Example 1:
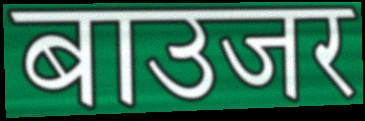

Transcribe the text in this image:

बाउजर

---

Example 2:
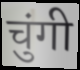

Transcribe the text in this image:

चुंगी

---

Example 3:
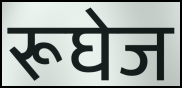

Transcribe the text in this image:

रूघेज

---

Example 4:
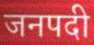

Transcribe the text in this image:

जनपदी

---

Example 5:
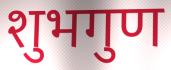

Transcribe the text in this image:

शुभगुण